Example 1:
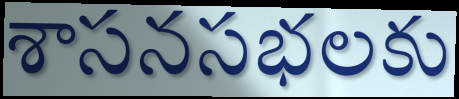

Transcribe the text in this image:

శాసనసభలకు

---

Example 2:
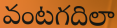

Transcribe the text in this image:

వంటగదిలా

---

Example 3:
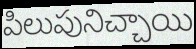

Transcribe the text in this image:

పిలుపునిచ్చాయి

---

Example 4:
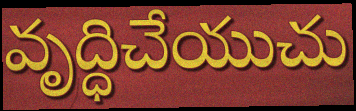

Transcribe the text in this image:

వృద్ధిచేయుచు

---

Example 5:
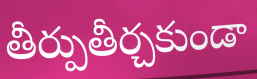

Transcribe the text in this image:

తీర్పుతీర్చకుండా